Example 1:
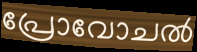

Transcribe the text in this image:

പ്രോവോചൽ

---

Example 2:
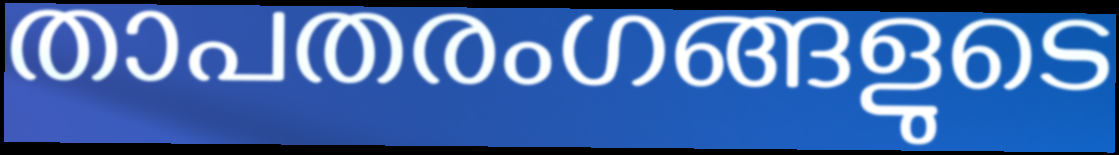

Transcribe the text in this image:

താപതരംഗങ്ങളുടെ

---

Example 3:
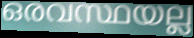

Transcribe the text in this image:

ഒരവസ്ഥയല്ല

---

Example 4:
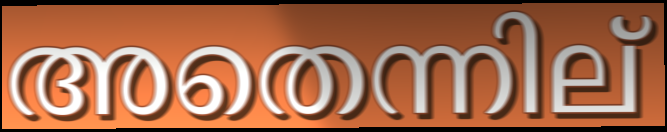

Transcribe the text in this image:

അതെന്നില്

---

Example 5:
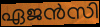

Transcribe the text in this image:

ഏജൻസി